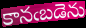
కానఁబడెను